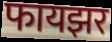
फायझर